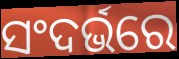
ସଂଦର୍ଭରେ